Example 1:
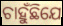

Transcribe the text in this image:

ଚାହୁଁଛିଯେ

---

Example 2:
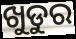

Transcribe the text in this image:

ଖୁଡୁର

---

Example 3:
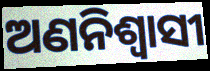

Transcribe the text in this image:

ଅଣନିଶ୍ୱାସୀ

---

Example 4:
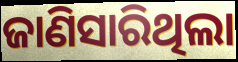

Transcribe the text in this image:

ଜାଣିସାରିଥିଲା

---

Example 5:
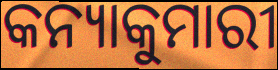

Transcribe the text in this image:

କନ୍ୟାକୁମାରୀ